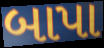
બાપા